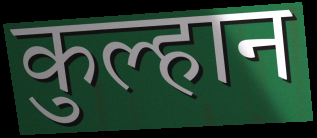
कुल्हान